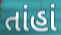
તાંહાં